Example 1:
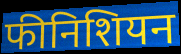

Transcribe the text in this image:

फीनिशियन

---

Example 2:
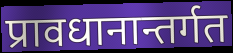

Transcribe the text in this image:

प्रावधानान्तर्गत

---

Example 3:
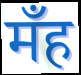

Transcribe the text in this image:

मँह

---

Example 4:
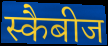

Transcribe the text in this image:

स्कैबीज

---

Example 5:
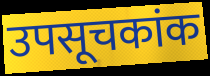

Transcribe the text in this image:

उपसूचकांक